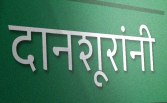
दानशूरांनी